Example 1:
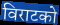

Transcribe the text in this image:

विराटको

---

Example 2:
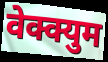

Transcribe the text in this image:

वेक्क्युम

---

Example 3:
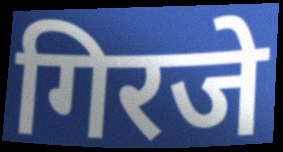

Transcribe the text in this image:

गिरजे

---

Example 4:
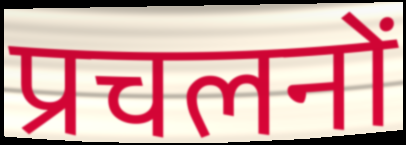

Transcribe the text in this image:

प्रचलनों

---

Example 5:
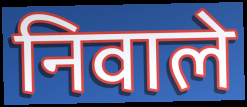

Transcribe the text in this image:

निवाले